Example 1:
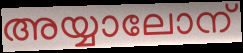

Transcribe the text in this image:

അയ്യാലോന്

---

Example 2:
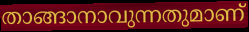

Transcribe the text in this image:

താങ്ങാനാവുന്നതുമാണ്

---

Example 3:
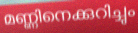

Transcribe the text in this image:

മണ്ണിനെക്കുറിച്ചും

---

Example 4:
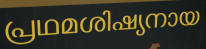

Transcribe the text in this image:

പ്രഥമശിഷ്യനായ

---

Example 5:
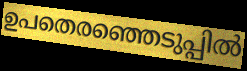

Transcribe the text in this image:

ഉപതെരഞ്ഞെടുപ്പിൽ